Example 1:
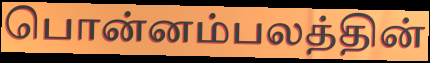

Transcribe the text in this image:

பொன்னம்பலத்தின்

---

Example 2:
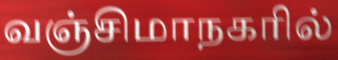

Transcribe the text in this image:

வஞ்சிமாநகரில்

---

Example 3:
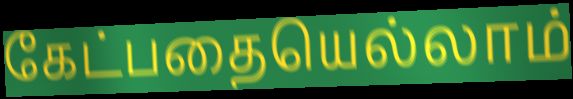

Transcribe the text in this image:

கேட்பதையெல்லாம்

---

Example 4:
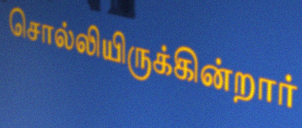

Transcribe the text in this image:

சொல்லியிருக்கின்றார்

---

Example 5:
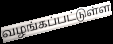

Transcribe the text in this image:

வழங்கப்பட்டுள்ள